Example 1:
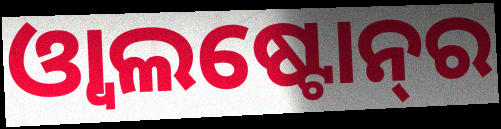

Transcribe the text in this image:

ଓ୍ୱାଲଷ୍ଟୋନ୍‌ର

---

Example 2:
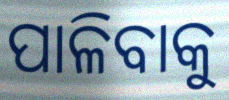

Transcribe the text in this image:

ପାଳିବାକୁ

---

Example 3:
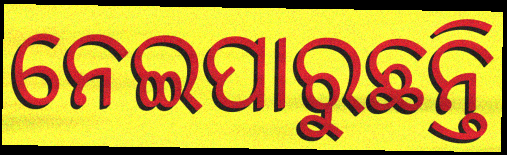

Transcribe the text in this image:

ନେଇପାରୁଛନ୍ତି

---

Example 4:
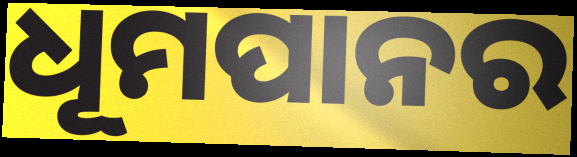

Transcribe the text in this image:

ଧୂମପାନର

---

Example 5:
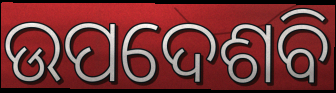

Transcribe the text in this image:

ଉପଦେଶବି